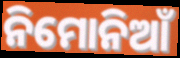
ନିମୋନିଆଁ